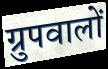
ग्रुपवालों